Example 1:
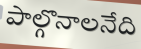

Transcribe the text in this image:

పాల్గొనాలనేది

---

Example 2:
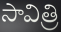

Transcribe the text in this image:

సావిత్రి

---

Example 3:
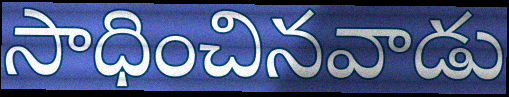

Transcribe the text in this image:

సాధించినవాడు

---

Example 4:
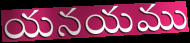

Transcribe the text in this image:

యనయము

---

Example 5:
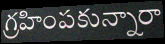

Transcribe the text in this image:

గ్రహింపకున్నారా